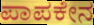
ಪಾಪಕೇನ